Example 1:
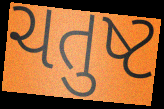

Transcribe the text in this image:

ચતુષ્ટ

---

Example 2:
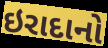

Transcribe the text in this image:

ઇરાદાનો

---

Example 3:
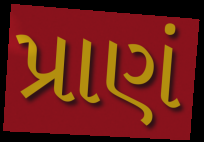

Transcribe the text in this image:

પ્રાણં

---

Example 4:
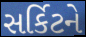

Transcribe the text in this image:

સર્કિટને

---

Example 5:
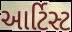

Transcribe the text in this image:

આર્ટિસ્ટ